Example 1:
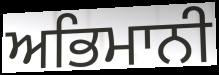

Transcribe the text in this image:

ਅਭਿਮਾਨੀ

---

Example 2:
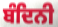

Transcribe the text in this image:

ਬੰਦਿਨੀ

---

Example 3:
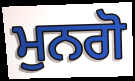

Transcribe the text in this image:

ਮੁਨਗੋ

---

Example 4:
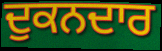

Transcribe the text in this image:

ਦੁਕਨਦਾਰ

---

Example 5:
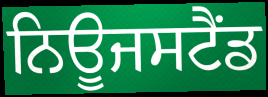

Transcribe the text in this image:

ਨਿਊਜਸਟੈਂਡ